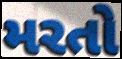
મરતો